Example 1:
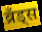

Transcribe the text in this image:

ब्रँड्स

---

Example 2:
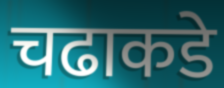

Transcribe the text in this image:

चढाकडे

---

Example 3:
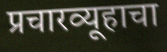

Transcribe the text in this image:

प्रचारव्यूहाचा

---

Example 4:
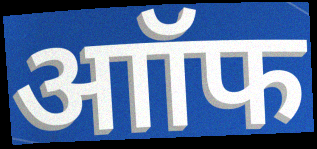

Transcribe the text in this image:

आॉफ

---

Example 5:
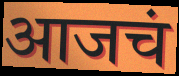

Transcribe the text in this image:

आजचं